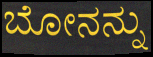
ಬೋನನ್ನು